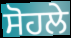
ਸੋਹਲੇ